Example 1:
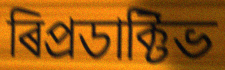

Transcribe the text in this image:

ৰিপ্ৰডাক্টিভ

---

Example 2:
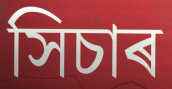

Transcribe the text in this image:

সিচাৰ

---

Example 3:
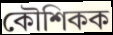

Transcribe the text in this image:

কৌশিকক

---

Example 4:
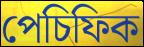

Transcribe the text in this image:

পেচিফিক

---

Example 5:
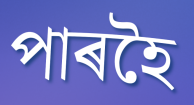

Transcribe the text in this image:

পাৰহৈ